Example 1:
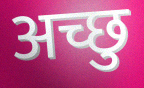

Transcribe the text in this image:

अच्छु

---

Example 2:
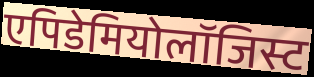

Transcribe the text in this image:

एपिडेमियोलॉजिस्ट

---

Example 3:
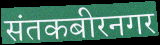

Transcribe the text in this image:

संतकबीरनगर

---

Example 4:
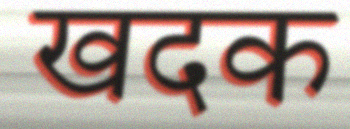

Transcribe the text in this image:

खदक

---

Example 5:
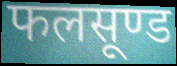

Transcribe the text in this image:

फलसूण्ड